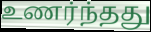
உணர்ந்தது